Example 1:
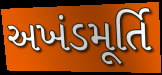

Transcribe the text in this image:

અખંડમૂર્તિ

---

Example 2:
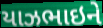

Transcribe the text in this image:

યાઝભાઇને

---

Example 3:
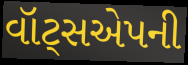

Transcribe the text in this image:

વૉટ્સએપની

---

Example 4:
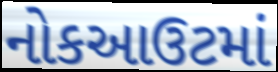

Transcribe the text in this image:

નોકઆઉટમાં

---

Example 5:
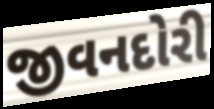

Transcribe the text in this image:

જીવનદોરી